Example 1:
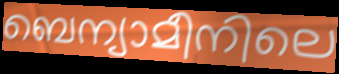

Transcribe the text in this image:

ബെന്യാമീനിലെ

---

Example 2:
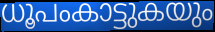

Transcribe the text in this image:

ധൂപംകാട്ടുകയും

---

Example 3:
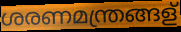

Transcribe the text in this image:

ശരണമന്ത്രങ്ങള്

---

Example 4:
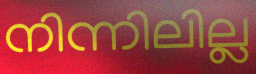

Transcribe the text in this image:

നിന്നിലില്ല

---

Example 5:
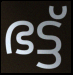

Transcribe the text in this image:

ഭട്ട്